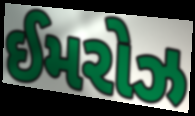
ઈમરોઝ